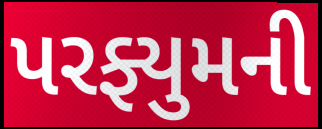
પરફ્યુમની